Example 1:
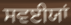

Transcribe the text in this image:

ਸਵਈਯਾਂ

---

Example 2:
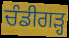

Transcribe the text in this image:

ਚੰਡੀਗਡ਼੍ਹ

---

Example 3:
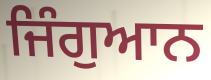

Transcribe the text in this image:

ਜਿੰਗੁਆਨ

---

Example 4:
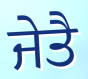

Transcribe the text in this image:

ਜੇਤੈ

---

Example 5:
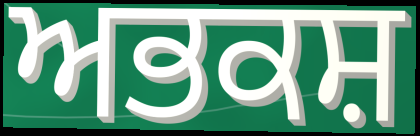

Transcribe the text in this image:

ਅਭਕਸ਼